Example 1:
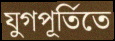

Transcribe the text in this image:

যুগপূর্তিতে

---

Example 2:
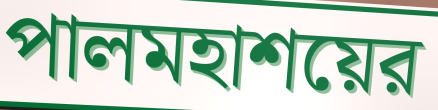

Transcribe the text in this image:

পালমহাশয়ের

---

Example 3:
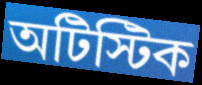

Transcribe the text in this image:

অটিস্টিক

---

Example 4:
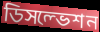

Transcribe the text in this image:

ডিসল্ভেশন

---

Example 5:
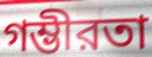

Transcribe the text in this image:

গম্ভীরতা